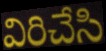
విరిచేసి